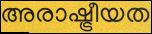
അരാഷ്ട്രീയത